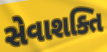
સેવાશક્તિ